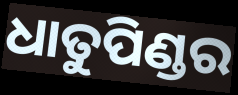
ଧାତୁପିଣ୍ଡର